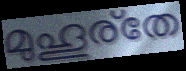
മുഹൂര്തേ